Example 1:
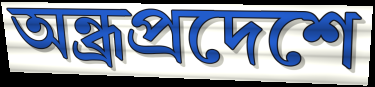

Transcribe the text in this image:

অন্ধ্রপ্রদেশে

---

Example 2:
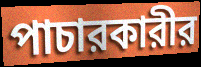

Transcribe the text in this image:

পাচারকারীর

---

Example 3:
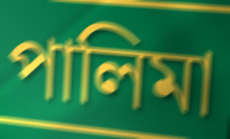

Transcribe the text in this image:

পালিমা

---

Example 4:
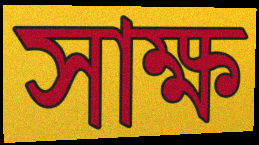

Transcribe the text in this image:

সাক্ষ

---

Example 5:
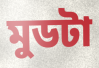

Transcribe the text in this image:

মুডটা